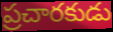
ప్రచారకుడు